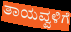
ತಾಯವ್ವಳಿಗೆ